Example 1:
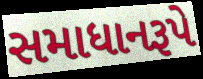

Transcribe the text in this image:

સમાધાનરૂપે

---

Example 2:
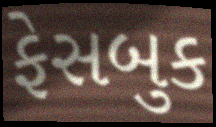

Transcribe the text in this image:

ફેસબુક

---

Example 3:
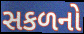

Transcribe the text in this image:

સકળનો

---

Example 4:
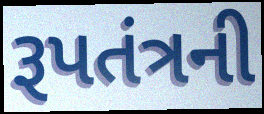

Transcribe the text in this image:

રૂપતંત્રની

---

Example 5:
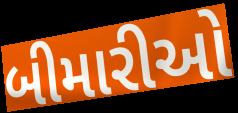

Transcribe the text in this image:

બીમારીઓ